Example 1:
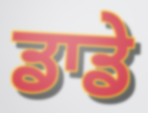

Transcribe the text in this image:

ਡਾਡੇ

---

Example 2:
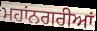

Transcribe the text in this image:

ਮਹਾਂਨਗਰੀਆਂ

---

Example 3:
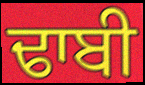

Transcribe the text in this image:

ਢਾਬੀ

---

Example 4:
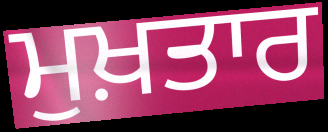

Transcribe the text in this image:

ਮੁਖ਼ਤਾਰ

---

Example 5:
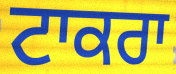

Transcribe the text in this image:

ਟਾਕਰਾ